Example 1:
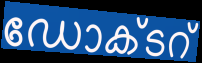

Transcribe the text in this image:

ഡോക്ടറ്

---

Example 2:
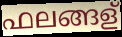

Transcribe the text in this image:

ഫലങ്ങള്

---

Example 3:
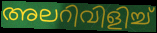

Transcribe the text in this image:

അലറിവിളിച്ച്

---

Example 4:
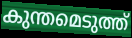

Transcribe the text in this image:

കുന്തമെടുത്ത്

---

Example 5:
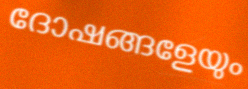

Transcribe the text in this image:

ദോഷങ്ങളേയും